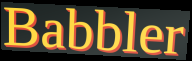
Babbler